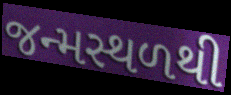
જન્મસ્થળથી